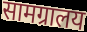
सामग्रालय